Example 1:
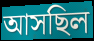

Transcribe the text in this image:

আসছিল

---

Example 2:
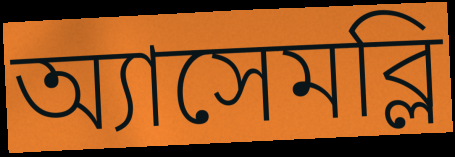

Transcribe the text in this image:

অ্যাসেমব্লি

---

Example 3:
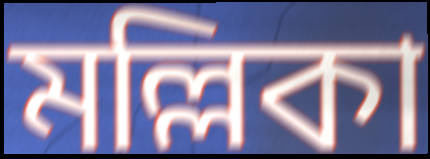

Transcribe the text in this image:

মল্লিকা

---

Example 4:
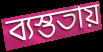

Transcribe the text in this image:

ব্যস্ততায়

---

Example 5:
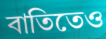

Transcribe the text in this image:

বাতিতেও